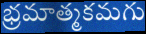
భ్రమాత్మకమగు